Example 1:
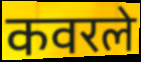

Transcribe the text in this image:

कवरले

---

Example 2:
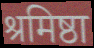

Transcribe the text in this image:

श्रमिष्ठा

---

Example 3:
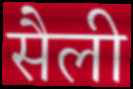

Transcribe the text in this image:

सैली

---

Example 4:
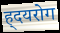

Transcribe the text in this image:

ह्दयरोग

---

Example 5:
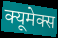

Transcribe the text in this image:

क्यूमेक्स